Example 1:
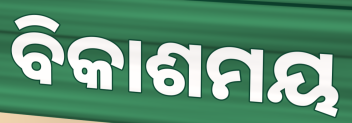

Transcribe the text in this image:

ବିକାଶମୟ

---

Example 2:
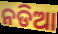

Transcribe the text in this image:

ନଡିଆ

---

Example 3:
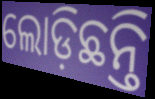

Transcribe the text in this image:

ଲୋଡ଼ିଛନ୍ତି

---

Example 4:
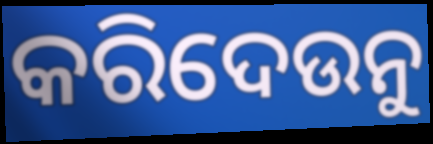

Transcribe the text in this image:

କରିଦେଉନୁ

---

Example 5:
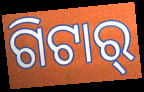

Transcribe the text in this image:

ଗିଟାର୍